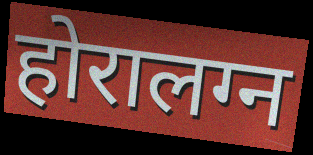
होरालग्न